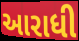
આરાધી